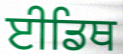
ਈਡਿਥ